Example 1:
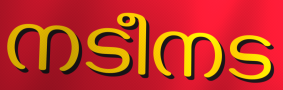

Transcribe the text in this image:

നടീനട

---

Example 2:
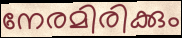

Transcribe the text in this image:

നേരമിരിക്കും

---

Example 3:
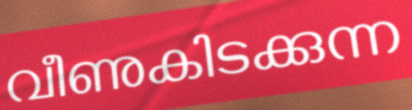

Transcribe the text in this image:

വീണുകിടക്കുന്ന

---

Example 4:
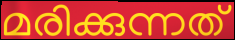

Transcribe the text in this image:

മരിക്കുന്നത്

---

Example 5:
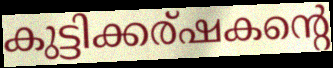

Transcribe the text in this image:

കുട്ടിക്കര്ഷകന്റെ